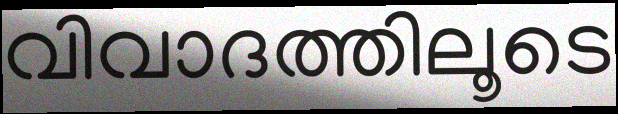
വിവാദത്തിലൂടെ